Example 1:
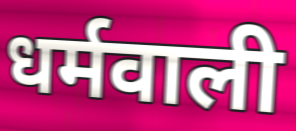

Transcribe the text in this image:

धर्मवाली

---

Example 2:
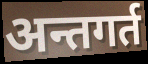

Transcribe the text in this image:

अन्तगर्त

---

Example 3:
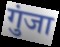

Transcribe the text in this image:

गुंजा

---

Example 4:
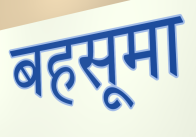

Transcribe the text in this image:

बहसूमा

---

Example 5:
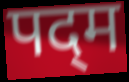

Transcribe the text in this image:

पद्‌म